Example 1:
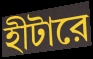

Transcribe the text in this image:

হীটারে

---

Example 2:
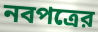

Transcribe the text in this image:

নবপত্রের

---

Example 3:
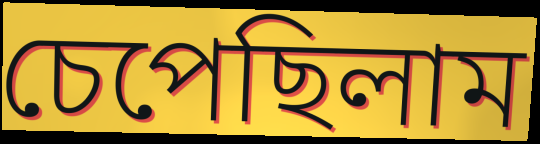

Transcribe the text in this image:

চেপেছিলাম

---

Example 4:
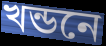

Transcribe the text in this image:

খন্ডনে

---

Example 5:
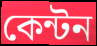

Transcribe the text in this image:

কেন্টন